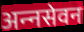
अन्नसेवन